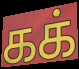
கக்